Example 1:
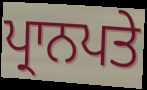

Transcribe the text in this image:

ਪ੍ਰਾਨਪਤੇ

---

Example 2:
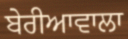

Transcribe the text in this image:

ਬੇਰੀਆਵਾਲਾ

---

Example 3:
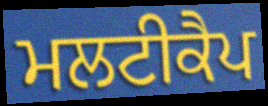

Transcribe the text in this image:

ਮਲਟੀਕੈਪ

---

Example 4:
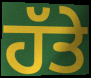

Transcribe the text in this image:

ਹੱਤੇ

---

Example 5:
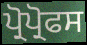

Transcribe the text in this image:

ਪ੍ਰੋਪ੍ਰੋਫਸ